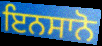
ਇਨਸਾਨੋ